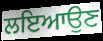
ਲਇਆਉਣ